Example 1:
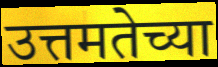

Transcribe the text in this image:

उत्तमतेच्या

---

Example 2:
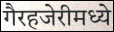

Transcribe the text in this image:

गैरहजेरीमध्ये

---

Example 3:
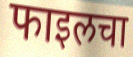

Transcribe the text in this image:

फाइलचा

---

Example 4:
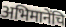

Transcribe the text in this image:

अभिमानेंचि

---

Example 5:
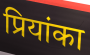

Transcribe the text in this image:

प्रियांका